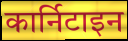
कार्निटाइन